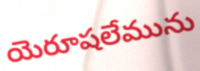
యెరూషలేమును